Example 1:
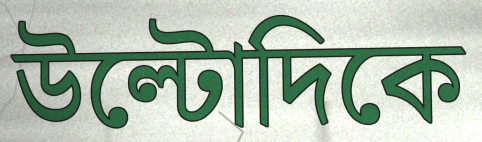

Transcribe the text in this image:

উল্টোদিকে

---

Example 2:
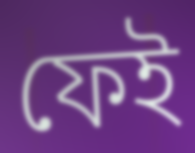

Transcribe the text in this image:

ফেই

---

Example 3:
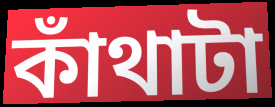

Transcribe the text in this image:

কাঁথাটা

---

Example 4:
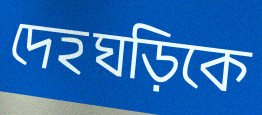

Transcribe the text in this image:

দেহঘড়িকে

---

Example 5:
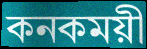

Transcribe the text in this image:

কনকময়ী